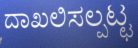
ದಾಖಲಿಸಲ್ಪಟ್ಟ